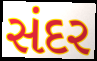
સંદર